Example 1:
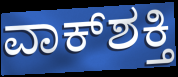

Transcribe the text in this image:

ವಾಕ್‌ಶಕ್ತಿ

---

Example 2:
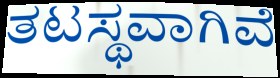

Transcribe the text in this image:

ತಟಸ್ಥವಾಗಿವೆ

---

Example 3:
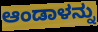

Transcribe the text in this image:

ಆಂಡಾಳನ್ನು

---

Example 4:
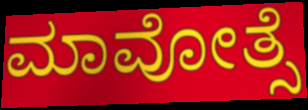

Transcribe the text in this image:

ಮಾವೋತ್ಸೆ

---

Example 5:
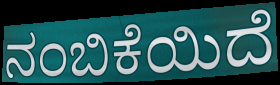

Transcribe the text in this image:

ನಂಬಿಕೆಯಿದೆ